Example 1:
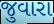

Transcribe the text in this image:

જુવારા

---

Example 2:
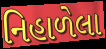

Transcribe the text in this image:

નિહાળેલા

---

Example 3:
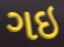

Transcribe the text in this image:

ગઇ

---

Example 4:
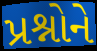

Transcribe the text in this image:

પ્રશ્નોને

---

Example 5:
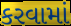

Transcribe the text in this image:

કરવામાં